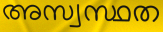
അസ്വസ്ഥത